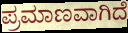
ಪ್ರಮಾಣವಾಗಿದೆ